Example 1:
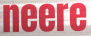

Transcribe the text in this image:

neere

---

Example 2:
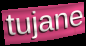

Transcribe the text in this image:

tujane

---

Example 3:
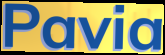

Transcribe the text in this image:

Pavia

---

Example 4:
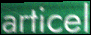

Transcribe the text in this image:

articel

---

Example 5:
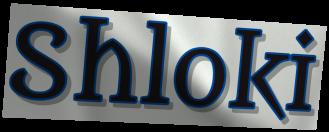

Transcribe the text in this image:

Shloki